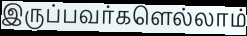
இருப்பவர்களெல்லாம்